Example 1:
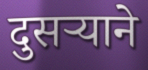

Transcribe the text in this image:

दुसर्‍याने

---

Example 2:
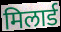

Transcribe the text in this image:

मिलार्ड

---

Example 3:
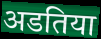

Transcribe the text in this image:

अडतिया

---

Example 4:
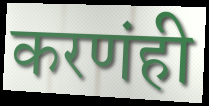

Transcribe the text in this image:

करणंही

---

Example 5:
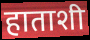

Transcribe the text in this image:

हाताशी